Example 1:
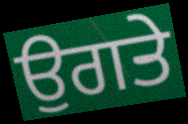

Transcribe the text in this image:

ਉਗਤੇ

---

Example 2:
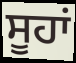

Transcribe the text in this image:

ਸੂਹਾਂ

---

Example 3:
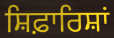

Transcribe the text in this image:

ਸ਼ਿਫ਼ਾਰਿਸ਼ਾਂ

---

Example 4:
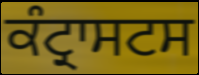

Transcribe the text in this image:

ਕੰਟ੍ਰਾਸਟਸ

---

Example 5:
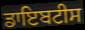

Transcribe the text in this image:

ਡਾਇਬਟੀਸ